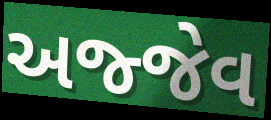
અજ્જેવ